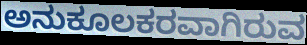
ಅನುಕೂಲಕರವಾಗಿರುವ